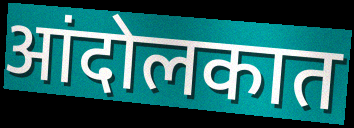
आंदोलकात